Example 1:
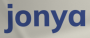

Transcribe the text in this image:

jonya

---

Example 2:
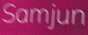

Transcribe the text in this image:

Samjun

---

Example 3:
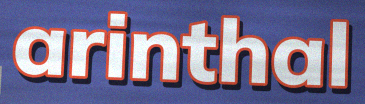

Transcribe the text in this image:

arinthal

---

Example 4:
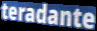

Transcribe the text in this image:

teradante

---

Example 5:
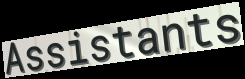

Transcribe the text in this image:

Assistants